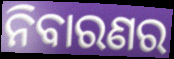
ନିବାରଣର